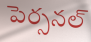
పెర్సనల్